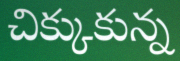
చిక్కుకున్న